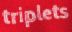
triplets